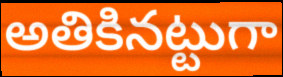
అతికినట్టుగా